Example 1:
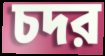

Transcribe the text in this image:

চদর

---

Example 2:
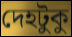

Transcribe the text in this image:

দেহটুকু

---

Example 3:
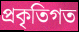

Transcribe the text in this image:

প্রকৃতিগত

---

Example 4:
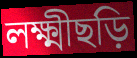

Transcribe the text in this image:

লক্ষ্মীছড়ি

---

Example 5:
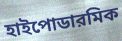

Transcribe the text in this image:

হাইপোডারমিক